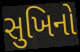
સુખિનો